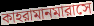
কাহরামানমারাসে